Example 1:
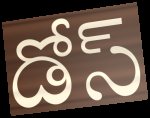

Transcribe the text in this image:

డోస్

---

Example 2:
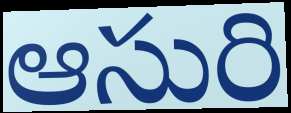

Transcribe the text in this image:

ఆసురి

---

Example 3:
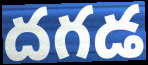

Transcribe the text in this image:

దగడ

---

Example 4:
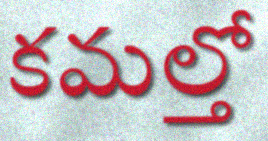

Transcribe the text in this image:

కమల్తో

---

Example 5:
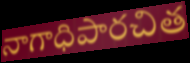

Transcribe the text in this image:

నాగాధిపారచిత